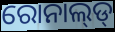
ରୋନାଲ୍‌ଡ୍